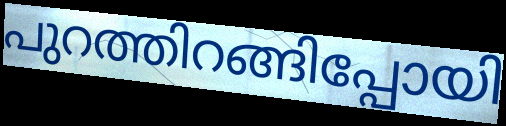
പുറത്തിറങ്ങിപ്പോയി